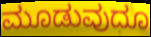
ಮೂಡುವುದೂ